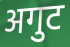
अगुट